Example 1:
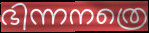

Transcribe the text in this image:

ഭിന്നനത്രെ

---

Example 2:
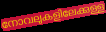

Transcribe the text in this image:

നോവലുകളിലേക്കുള്ള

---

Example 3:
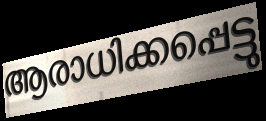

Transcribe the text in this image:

ആരാധിക്കപ്പെട്ടു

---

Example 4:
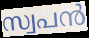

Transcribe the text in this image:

സ്വപൻ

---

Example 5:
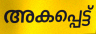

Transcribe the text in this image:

അകപ്പെട്ട്